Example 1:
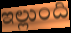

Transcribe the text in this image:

ఇల్లుంది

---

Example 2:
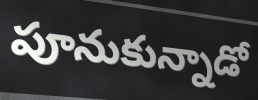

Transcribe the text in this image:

పూనుకున్నాడో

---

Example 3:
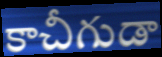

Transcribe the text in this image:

కాచీగుడా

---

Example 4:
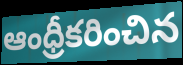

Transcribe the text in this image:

ఆంధ్రీకరించిన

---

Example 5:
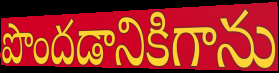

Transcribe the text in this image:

పొందడానికిగాను